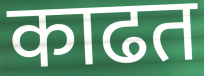
काढत